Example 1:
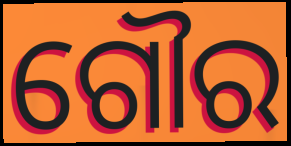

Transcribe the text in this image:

ଗୌର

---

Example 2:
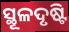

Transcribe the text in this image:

ସ୍ଥୂଳଦୃଷ୍ଟି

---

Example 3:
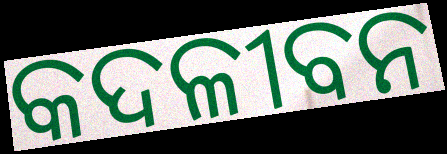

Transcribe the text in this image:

କଦଳୀବନ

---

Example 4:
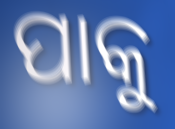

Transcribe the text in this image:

ପାକୁ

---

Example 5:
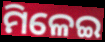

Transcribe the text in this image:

ମିଳେଇ